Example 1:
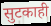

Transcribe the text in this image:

सुटकाही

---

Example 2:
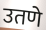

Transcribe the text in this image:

उतणे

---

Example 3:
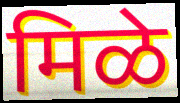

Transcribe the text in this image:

मिळे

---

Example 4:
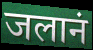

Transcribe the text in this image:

जलानं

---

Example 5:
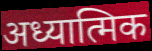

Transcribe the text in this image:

अध्यात्मिक